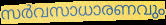
സർവസാധാരണവും